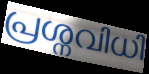
പ്രശ്നവിധി